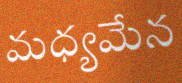
మధ్యమేన